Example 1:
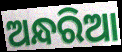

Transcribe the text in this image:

ଅନ୍ଧରିଆ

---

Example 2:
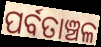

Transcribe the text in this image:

ପର୍ବତାଞ୍ଚଳ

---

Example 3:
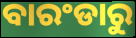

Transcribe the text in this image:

ବାରଂଡାରୁ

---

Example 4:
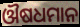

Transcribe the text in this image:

ଔଷଧମାନ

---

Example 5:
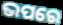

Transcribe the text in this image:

ଭପରେ